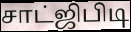
சாட்ஜிபிடி